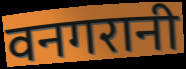
वनगरानी